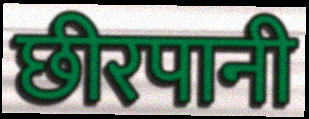
छीरपानी